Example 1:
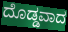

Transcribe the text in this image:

ದೊಡ್ಡವಾದ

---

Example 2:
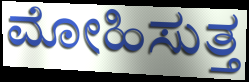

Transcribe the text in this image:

ಮೋಹಿಸುತ್ತ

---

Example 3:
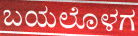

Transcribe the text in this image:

ಬಯಲೊಳಗ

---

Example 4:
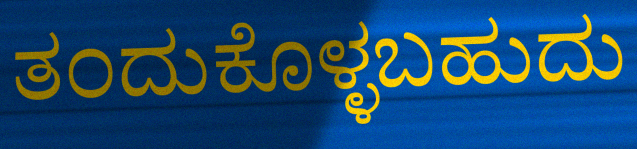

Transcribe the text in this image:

ತಂದುಕೊಳ್ಳಬಹುದು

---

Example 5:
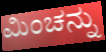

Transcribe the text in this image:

ಮಿಂಚನ್ನು